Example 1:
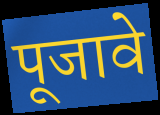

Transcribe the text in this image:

पूजावे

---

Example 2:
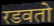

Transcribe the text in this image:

रडवतो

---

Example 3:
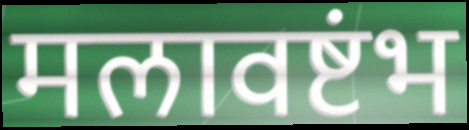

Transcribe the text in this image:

मलावष्टंभ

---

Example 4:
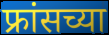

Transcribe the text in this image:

फ्रांसच्या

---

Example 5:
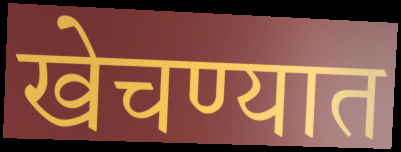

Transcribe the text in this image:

खेचण्यात